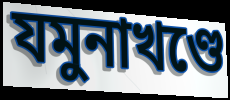
যমুনাখণ্ডে